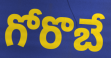
గోరొబే